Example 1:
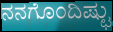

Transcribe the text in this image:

ನನಗೊಂದಿಷ್ಟು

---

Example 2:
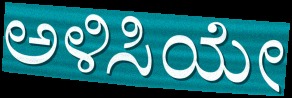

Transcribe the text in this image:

ಅಳಿಸಿಯೇ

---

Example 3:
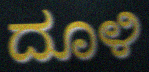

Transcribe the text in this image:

ದೂಳಿ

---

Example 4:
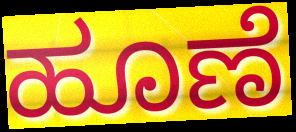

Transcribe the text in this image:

ಹೂಣೆ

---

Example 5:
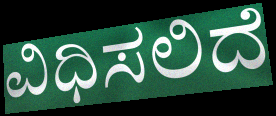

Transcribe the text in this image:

ವಿಧಿಸಲಿದೆ